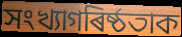
সংখ্যাগৰিষ্ঠতাক